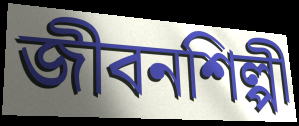
জীবনশিল্পী